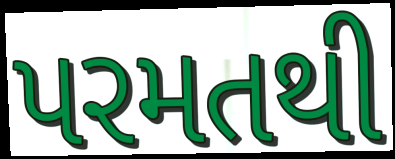
પરમતથી